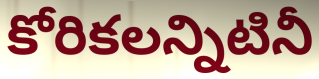
కోరికలన్నిటినీ